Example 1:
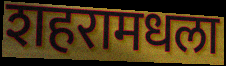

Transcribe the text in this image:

शहरामधला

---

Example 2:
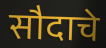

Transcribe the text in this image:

सौदाचे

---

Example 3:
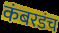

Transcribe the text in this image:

कंबरडंच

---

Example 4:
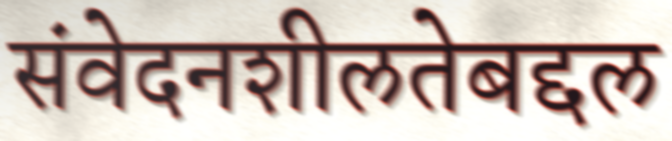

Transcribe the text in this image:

संवेदनशीलतेबद्दल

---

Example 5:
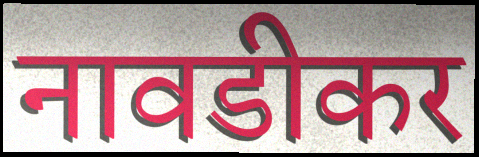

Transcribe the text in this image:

नावडीकर